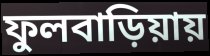
ফুলবাড়িয়ায়